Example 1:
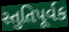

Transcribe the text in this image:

સ્તુતિપૂર્વક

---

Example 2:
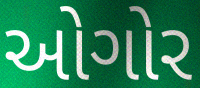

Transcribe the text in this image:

ઓગોર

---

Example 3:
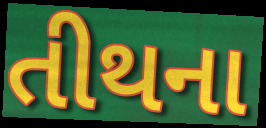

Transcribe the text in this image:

તીથના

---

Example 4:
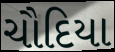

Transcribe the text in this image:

ચૌદિયા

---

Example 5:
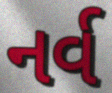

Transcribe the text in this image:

નર્વ